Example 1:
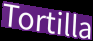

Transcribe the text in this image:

Tortilla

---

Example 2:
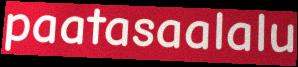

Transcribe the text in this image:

paatasaalalu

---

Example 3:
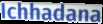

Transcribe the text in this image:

Ichhadana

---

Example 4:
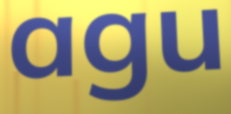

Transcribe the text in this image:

agu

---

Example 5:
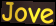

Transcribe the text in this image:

Jove